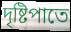
দৃষ্টিপাতে